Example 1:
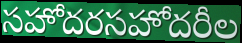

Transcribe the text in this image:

సహోదరసహోదరీల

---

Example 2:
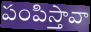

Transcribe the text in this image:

పంపిస్తావా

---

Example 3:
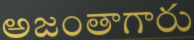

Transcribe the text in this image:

అజంతాగారు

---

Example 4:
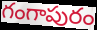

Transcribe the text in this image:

గంగాపురం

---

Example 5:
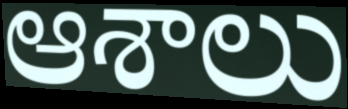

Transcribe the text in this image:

ఆశాలు